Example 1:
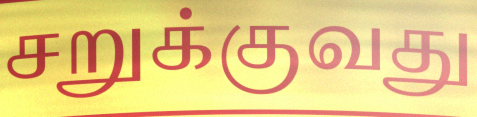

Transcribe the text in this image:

சறுக்குவது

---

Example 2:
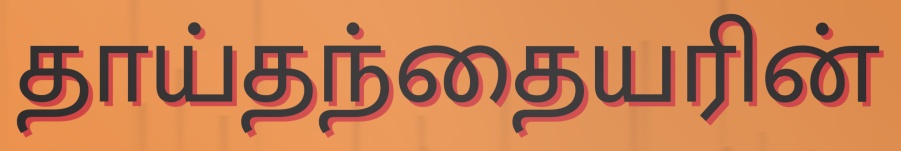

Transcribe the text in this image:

தாய்தந்தையரின்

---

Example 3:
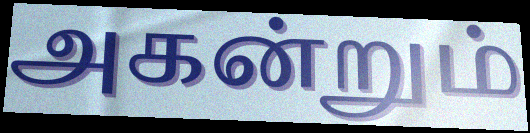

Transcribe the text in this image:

அகன்றும்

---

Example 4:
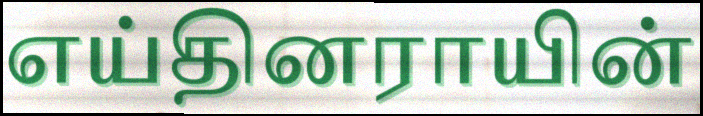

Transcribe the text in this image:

எய்தினராயின்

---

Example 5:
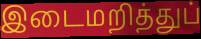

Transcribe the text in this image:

இடைமறித்துப்